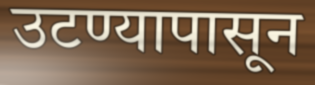
उटण्यापासून